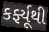
કર્ફ્યૂથી